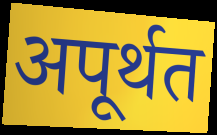
अपूर्थत